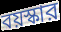
বয়স্কার